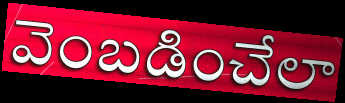
వెంబడించేలా